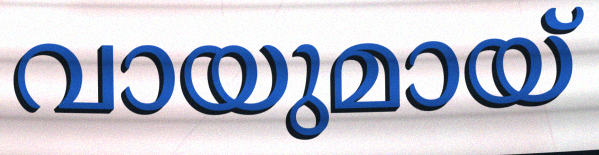
വായുമായ്